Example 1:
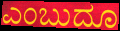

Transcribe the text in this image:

ಎಂಬುದೂ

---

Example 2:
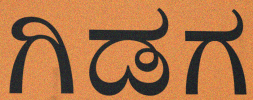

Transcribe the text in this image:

ಗಿಡಗ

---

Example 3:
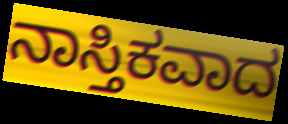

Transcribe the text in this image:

ನಾಸ್ತಿಕವಾದ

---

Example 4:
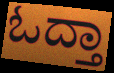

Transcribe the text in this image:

ಓದ್ತಾ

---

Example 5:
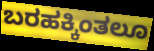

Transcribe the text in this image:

ಬರಹಕ್ಕಿಂತಲೂ